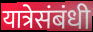
यात्रेसंबंधी